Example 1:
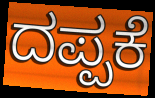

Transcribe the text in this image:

ದಪ್ಪಕೆ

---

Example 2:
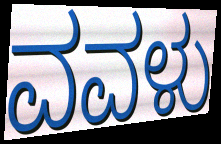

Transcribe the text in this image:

ವವಳು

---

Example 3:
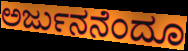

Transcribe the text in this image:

ಅರ್ಜುನನೆಂದೂ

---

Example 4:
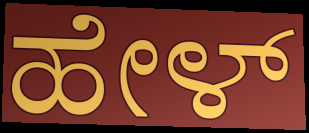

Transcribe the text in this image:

ಹೇಳ್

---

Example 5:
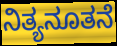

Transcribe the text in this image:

ನಿತ್ಯನೂತನೆ